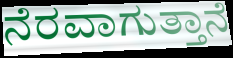
ನೆರವಾಗುತ್ತಾನೆ